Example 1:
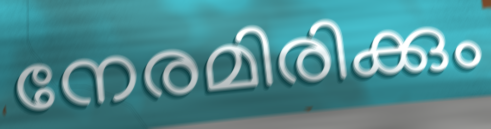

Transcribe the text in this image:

നേരമിരിക്കും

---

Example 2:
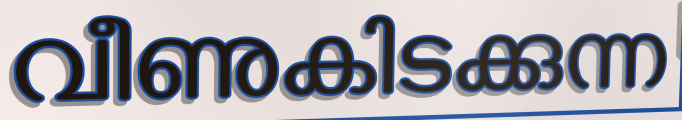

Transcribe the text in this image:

വീണുകിടക്കുന്ന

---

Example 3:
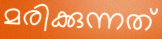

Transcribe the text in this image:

മരിക്കുന്നത്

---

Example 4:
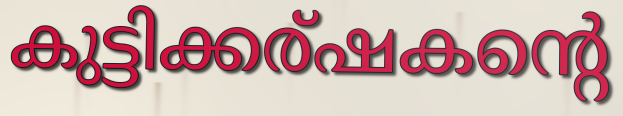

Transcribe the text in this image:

കുട്ടിക്കര്ഷകന്റെ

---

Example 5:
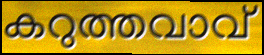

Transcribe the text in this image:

കറുത്തവാവ്